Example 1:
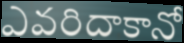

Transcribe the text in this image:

ఎవరిదాకానో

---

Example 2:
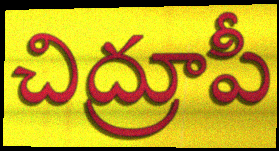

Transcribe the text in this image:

చిద్రూపీ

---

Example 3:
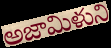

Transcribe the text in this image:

అజామిళుని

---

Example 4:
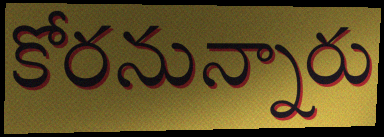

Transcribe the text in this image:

కోరనున్నారు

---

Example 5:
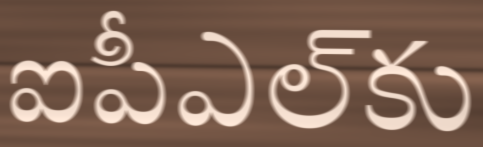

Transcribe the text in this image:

ఐపీఎల్‌కు